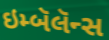
ઇમ્બૅલૅન્સ